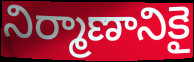
నిర్మాణానికై